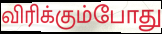
விரிக்கும்போது